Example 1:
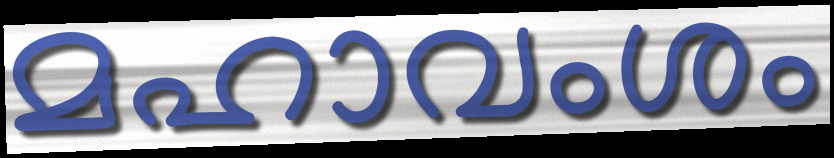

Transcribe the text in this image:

മഹാവംശം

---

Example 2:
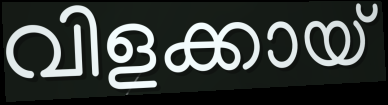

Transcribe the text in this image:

വിളക്കായ്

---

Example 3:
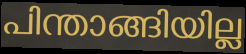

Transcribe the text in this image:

പിന്താങ്ങിയില്ല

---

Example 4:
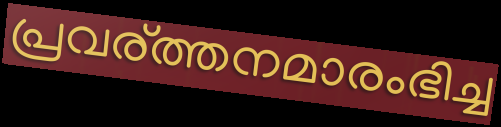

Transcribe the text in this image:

പ്രവര്ത്തനമാരംഭിച്ച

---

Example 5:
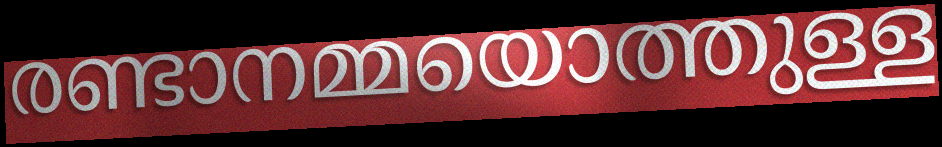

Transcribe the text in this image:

രണ്ടാനമ്മയൊത്തുള്ള